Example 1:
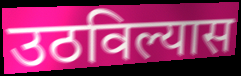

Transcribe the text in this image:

उठविल्यास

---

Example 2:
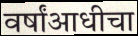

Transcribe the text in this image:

वर्षांआधीचा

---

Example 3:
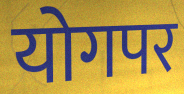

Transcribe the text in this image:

योगपर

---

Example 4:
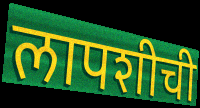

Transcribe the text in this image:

लापशीची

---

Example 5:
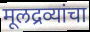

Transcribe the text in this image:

मूलद्रव्यांचा